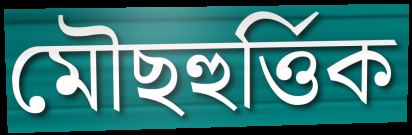
মৌছহুৰ্ত্তিক